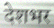
देशभर